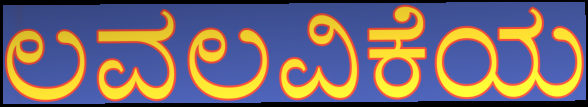
ಲವಲವಿಕೆಯ